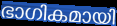
ഭാഗികമായി